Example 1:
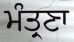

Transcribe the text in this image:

ਮੰਤ੍ਰਣਾ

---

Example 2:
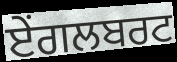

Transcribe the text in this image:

ਏਂਗਲਬਰਟ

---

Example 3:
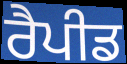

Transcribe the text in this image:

ਰੈਪੀਡ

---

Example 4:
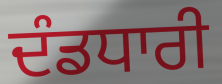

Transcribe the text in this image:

ਦੰਡਧਾਰੀ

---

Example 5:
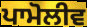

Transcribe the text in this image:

ਪਾਮੋਲੀਵ